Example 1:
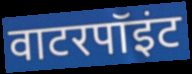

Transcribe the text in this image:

वाटरपॉइंट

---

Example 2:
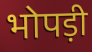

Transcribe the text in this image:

भोपड़ी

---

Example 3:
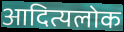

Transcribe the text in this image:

आदित्यलोक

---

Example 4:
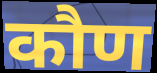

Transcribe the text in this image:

कौण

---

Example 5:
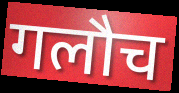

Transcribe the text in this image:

गलौच